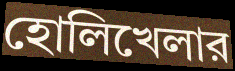
হোলিখেলার